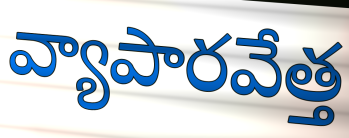
వ్యాపారవేత్త